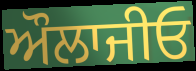
ਔਲਾਜੀਓ